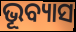
ଭୂବ୍ୟାସ